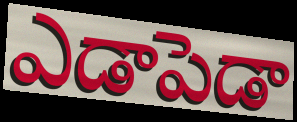
ఎడాపెడా